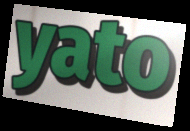
yato